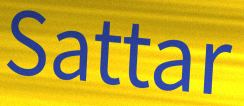
Sattar